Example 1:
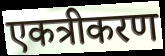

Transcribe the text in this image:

एकत्रीकरण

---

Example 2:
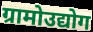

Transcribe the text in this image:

ग्रामोउद्योग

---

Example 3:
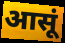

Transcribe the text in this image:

आसूं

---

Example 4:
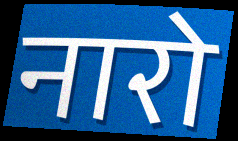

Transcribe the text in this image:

नारो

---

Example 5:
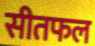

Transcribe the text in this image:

सीतफल